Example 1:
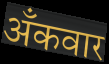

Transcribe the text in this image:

अँकवार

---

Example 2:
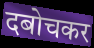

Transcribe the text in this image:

दबोचकर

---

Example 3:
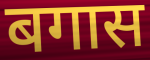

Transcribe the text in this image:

बगास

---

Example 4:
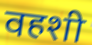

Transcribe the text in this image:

वहशी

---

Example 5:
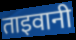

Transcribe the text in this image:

ताइवानी